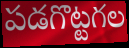
పడగొట్టగల